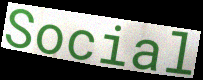
Social